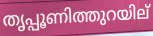
തൃപ്പൂണിത്തുറയില്